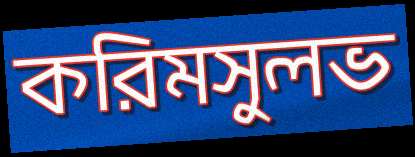
করিমসুলভ